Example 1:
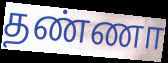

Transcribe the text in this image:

தண்ணா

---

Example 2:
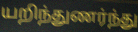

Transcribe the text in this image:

யறிந்துணர்ந்து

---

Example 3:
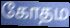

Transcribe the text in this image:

கோதம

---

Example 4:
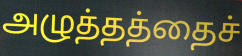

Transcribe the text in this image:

அழுத்தத்தைச்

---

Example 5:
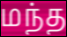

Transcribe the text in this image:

மந்த